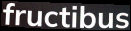
fructibus